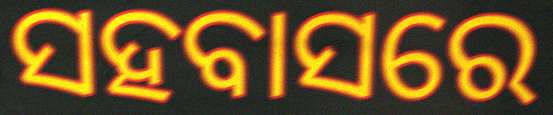
ସହବାସରେ